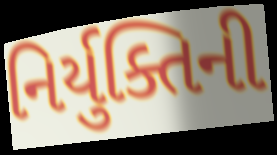
નિર્યુક્તિની